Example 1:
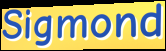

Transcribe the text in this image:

Sigmond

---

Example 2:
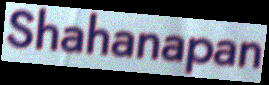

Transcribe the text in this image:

Shahanapan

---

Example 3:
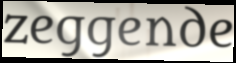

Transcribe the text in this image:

zeggende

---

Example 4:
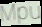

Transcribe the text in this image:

Mpu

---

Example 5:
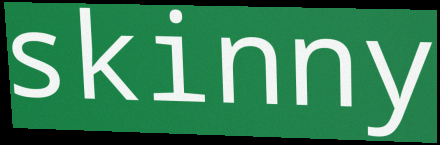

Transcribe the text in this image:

skinny